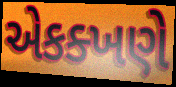
એકક્ખણે